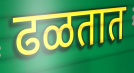
ढळतात